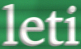
leti